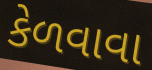
કેળવાવા